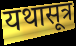
यथासूत्र